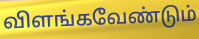
விளங்கவேண்டும்